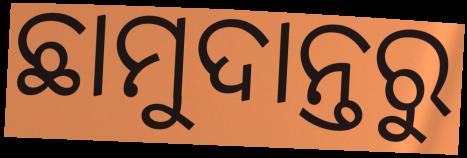
ଛାମୁଦାନ୍ତରୁ